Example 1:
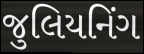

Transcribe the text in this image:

જુલિયનિંગ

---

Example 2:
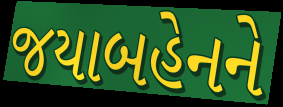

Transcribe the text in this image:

જયાબહેનને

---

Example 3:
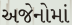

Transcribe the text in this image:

અજેનોમાં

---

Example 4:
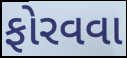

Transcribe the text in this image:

ફોરવવા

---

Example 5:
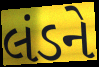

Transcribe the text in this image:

લંડને